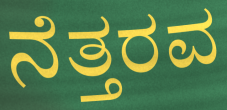
ನೆತ್ತರವ